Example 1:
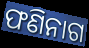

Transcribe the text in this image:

ଫଣିନାଗ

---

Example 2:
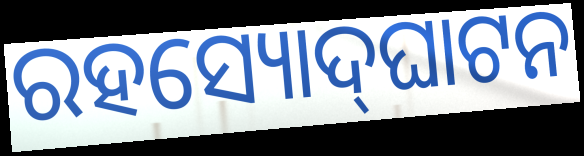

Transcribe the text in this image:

ରହସ୍ୟୋଦ୍‍ଘାଟନ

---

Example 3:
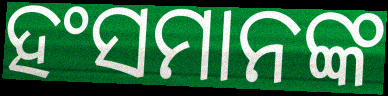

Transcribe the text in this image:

ହଂସମାନଙ୍କ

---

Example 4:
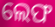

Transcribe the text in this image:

ଲେଫ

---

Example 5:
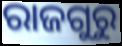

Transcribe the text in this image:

ରାଜଗୁରୁ